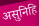
असुनिहि